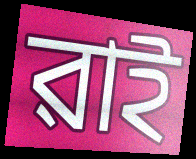
ৱাই